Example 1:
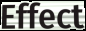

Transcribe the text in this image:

Effect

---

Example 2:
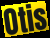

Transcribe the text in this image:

Otis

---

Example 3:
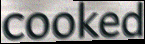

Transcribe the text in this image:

cooked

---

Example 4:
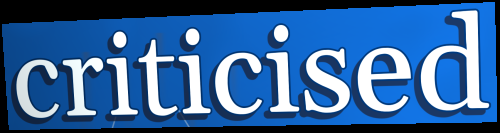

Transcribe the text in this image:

criticised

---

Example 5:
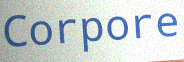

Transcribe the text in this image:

Corpore